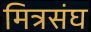
मित्रसंघ